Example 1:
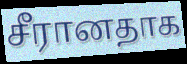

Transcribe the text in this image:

சீரானதாக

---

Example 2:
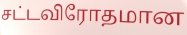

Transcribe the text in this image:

சட்டவிரோதமான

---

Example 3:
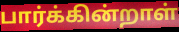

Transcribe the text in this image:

பார்க்கின்றாள்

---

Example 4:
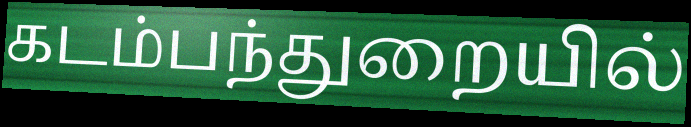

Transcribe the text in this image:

கடம்பந்துறையில்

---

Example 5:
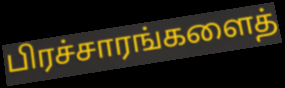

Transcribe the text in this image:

பிரச்சாரங்களைத்